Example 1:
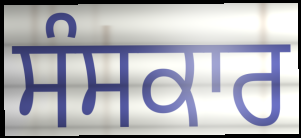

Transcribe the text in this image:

ਸੰਸਕਾਰ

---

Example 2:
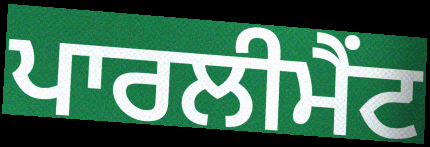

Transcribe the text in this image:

ਪਾਰਲੀਮੈਂਟ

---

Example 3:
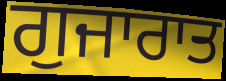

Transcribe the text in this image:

ਗੁਜਾਰਾਤ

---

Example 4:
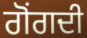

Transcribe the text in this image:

ਗੋਂਗਦੀ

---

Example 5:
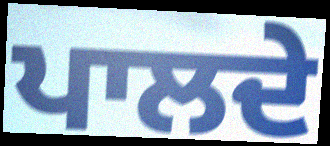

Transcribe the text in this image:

ਪਾਲਦੇ